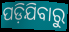
ପଡ଼ିଯିବାରୁ